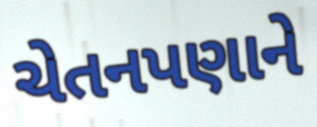
ચેતનપણાને